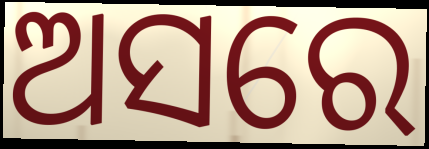
ଅସରେ